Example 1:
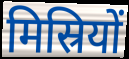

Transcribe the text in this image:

मिस्रियों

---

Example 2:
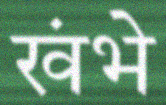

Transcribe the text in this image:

खंभे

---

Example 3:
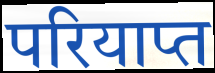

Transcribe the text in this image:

परियाप्त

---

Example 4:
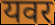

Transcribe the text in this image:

यवर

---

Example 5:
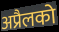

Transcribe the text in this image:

अप्रैलको